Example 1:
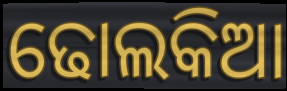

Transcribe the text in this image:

ଢୋଲକିଆ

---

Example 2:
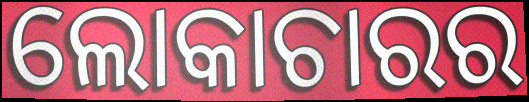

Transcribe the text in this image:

ଲୋକାଚାରର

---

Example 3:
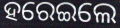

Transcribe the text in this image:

ହରେଇଲେ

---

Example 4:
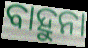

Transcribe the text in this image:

ବାହୁନା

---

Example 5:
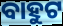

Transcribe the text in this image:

ବାହୁଟ